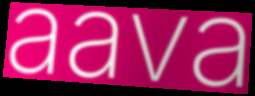
aava